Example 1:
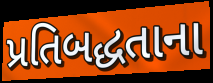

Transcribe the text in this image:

પ્રતિબદ્ધતાના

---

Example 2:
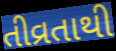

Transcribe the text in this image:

તીવ્રતાથી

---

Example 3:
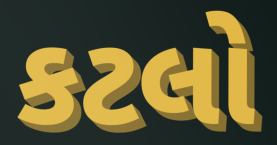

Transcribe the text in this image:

કટલો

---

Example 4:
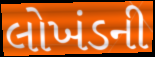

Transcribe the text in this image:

લોખંડની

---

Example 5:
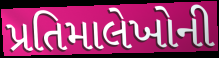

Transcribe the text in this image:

પ્રતિમાલેખોની